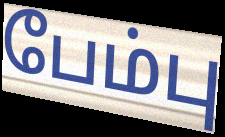
பேம்பு